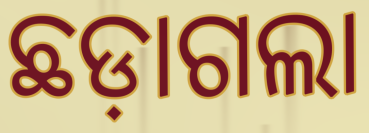
ଛଡ଼ାଗଲା